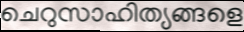
ചെറുസാഹിത്യങ്ങളെ